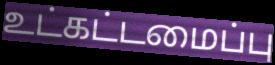
உட்கட்டமைப்பு